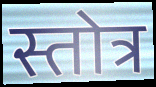
स्तोत्र